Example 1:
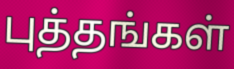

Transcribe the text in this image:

புத்தங்கள்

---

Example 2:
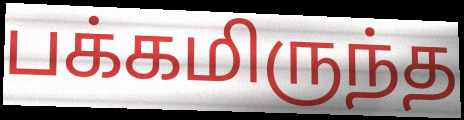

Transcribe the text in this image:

பக்கமிருந்த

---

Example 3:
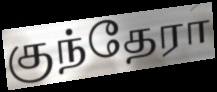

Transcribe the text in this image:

குந்தேரா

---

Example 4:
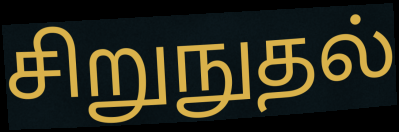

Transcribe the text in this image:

சிறுநுதல்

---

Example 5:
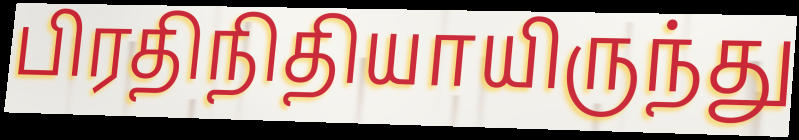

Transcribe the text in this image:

பிரதிநிதியாயிருந்து